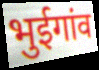
भुईगांव